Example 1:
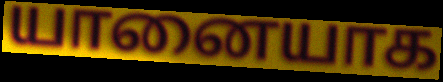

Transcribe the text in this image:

யானையாக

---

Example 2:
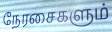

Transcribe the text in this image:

நேரசைகளும்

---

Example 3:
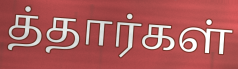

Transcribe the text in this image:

த்தார்கள்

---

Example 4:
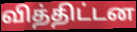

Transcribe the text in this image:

வித்திட்டன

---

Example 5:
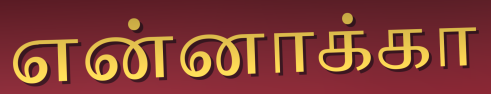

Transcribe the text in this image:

என்னாக்கா